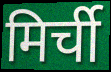
मिर्ची